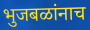
भुजबळांनाच